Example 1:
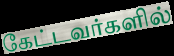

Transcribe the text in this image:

கேட்டவர்களில்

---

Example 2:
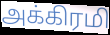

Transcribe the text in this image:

அக்கிரமி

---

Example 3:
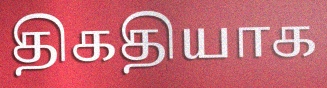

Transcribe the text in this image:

திகதியாக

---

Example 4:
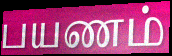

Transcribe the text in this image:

பயணம்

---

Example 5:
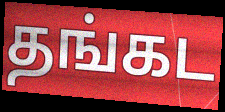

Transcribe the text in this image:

தங்கட